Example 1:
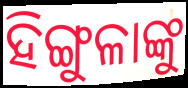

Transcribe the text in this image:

ହିଙ୍ଗୁଳାଙ୍କୁ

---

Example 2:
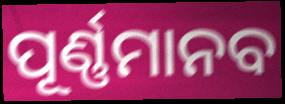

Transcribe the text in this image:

ପୂର୍ଣ୍ଣମାନବ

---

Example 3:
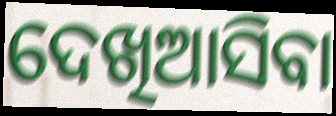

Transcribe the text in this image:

ଦେଖିଆସିବା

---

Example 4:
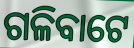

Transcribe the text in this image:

ଗଳିବାଟେ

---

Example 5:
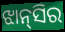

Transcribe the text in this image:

ଝାନ୍‌ସିର